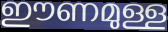
ഈണമുള്ള